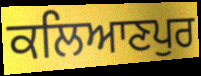
ਕਲਿਆਣਪੁਰ